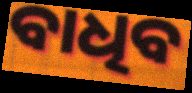
ବାଧିବ